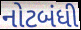
નોટબંધી